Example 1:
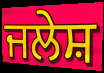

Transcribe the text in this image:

ਜਲੇਸ਼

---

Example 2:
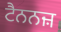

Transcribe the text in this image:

ਟੈਨਨਜ਼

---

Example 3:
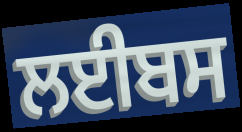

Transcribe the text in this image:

ਲਈਬਸ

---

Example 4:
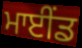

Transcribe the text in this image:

ਮਾਈਂਡ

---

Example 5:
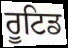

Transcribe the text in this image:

ਰੂਟਿਡ